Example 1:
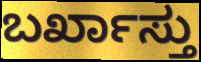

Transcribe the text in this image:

ಬರ್ಖಾಸ್ತು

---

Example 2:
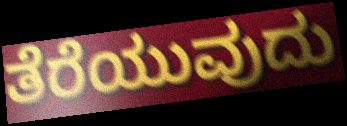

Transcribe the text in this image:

ತೆರೆಯುವುದು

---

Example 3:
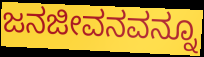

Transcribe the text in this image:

ಜನಜೀವನವನ್ನೂ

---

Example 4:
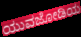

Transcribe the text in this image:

ಯುವಜೋಡಿಯ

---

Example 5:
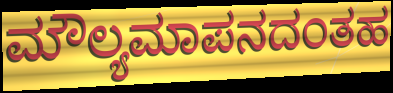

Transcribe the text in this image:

ಮೌಲ್ಯಮಾಪನದಂತಹ